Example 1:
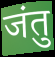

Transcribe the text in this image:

जंतु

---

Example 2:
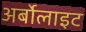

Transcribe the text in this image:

अर्बोलाइट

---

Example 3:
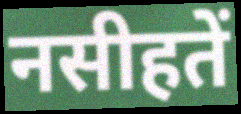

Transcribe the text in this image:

नसीहतें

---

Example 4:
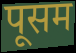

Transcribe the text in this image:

पूसम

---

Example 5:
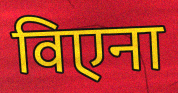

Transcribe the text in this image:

विएना